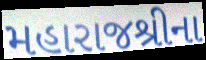
મહારાજશ્રીના